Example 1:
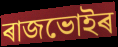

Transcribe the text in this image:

ৰাজভোইৰ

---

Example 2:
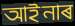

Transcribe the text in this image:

আইনাৰ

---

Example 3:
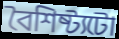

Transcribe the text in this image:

বৈশিষ্ট্যটো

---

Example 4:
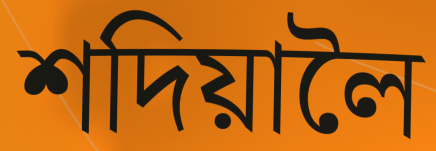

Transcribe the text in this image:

শদিয়ালৈ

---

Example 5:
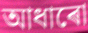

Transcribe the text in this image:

আধাৰো